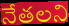
నేతలని